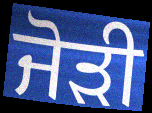
ਜੋਡ਼ੀ